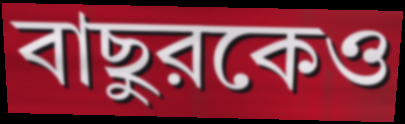
বাছুরকেও